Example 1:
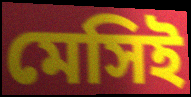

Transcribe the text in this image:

মেসিই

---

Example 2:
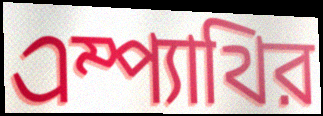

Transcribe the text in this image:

এম্প্যাথির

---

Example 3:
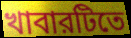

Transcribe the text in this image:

খাবারটিতে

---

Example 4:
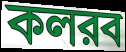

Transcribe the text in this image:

কলরব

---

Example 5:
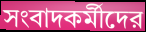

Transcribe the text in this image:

সংবাদকর্মীদের